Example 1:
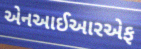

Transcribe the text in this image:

એનઆઈઆરએફ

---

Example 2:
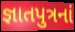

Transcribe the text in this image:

જ્ઞાતપુત્રનાં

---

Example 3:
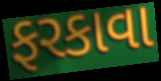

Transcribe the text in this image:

ફરકાવા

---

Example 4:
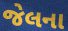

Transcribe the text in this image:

જેલના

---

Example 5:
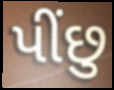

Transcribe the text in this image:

પીંછુ